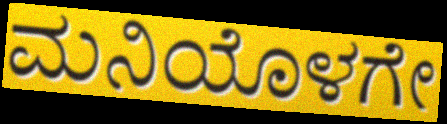
ಮನಿಯೊಳಗೇ